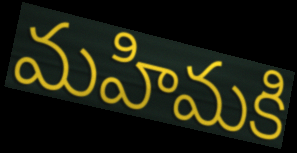
మహిమకి